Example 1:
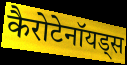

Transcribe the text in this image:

कैरोटेनॉयड्स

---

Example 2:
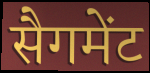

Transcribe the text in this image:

सैगमेंट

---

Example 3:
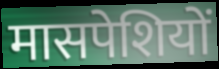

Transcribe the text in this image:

मासपेशियों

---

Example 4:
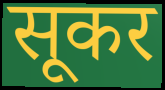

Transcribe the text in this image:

सूकर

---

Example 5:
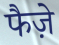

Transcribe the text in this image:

फैज़े